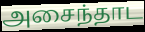
அசைந்தாட